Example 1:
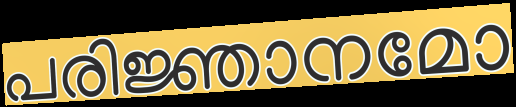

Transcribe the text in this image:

പരിജ്ഞാനമോ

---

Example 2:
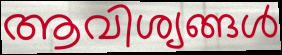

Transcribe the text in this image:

ആവിശ്യങ്ങൾ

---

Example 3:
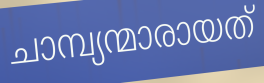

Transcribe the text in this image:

ചാമ്പ്യന്മാരായത്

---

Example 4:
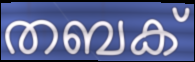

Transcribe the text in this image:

തബക്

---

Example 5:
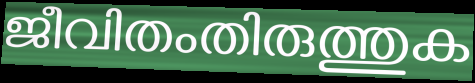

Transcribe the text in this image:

ജീവിതംതിരുത്തുക